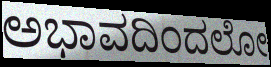
ಅಭಾವದಿಂದಲೋ